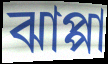
ঝাপ্পা